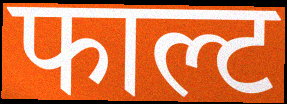
फाल्ट